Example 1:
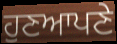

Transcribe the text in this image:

ਹੁਣਆਪਣੇ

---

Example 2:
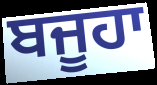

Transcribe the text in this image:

ਬਜੂਹਾ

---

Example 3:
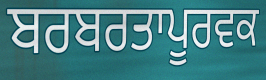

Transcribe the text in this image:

ਬਰਬਰਤਾਪੂਰਵਕ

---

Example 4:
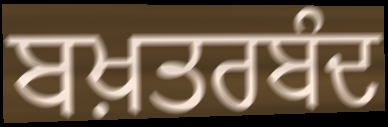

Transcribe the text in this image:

ਬਖ਼ਤਰਬੰਦ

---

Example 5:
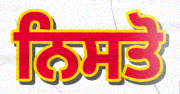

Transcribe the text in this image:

ਨਿਸਤੋ